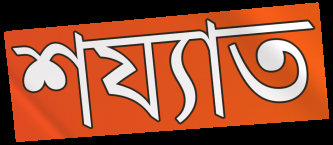
শয্যাত